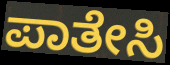
ಪಾತೇಸಿ